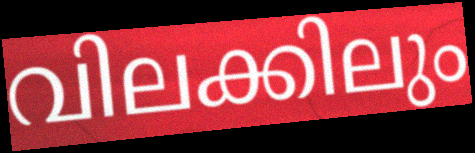
വിലക്കിലും